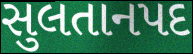
સુલતાનપદ